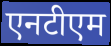
एनटीएम